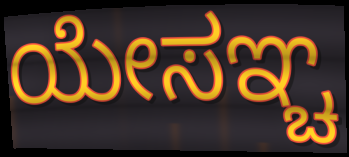
ಯೇಸಞ್ಚ